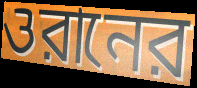
ওরানের